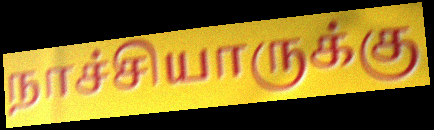
நாச்சியாருக்கு